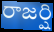
రాజర్షి